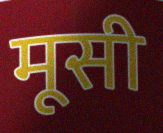
मूसी